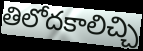
తిలోదకాలిచ్చి